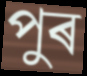
পুৰ